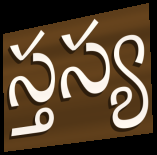
స్తస్య